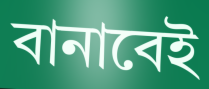
বানাবেই